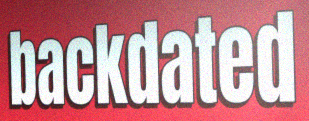
backdated